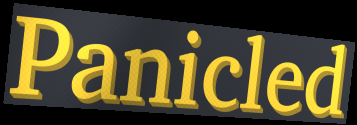
Panicled